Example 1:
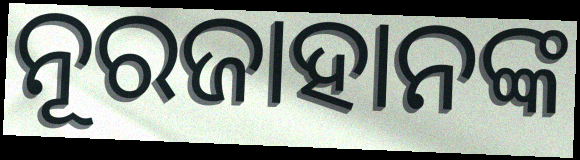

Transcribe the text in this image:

ନୂରଜାହାନଙ୍କ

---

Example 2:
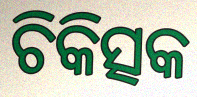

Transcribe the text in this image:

ଚିକିତ୍ସକ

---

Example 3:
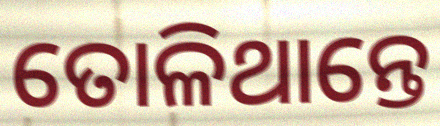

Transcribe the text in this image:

ତୋଳିଥାନ୍ତେ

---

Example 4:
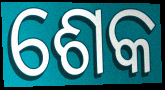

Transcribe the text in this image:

ଶେକ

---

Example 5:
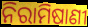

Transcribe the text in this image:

ନିରାମିଷାଣୀ